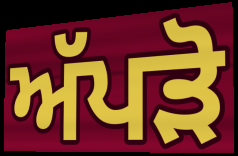
ਅੱਪੜੋ